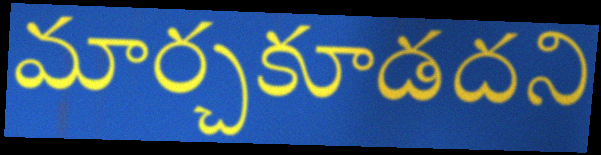
మార్చకూడదని